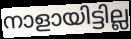
നാളായിട്ടില്ല